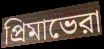
প্রিমাভেরা